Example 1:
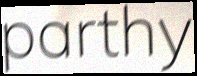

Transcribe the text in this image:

parthy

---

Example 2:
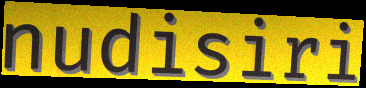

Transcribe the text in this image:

nudisiri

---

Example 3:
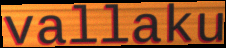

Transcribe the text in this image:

vallaku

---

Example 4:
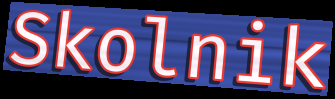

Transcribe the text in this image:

Skolnik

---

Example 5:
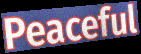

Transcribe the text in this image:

Peaceful